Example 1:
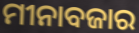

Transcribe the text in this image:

ମୀନାବଜାର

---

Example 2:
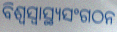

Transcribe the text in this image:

ବିଶ୍ଵସ୍ଵାସ୍ଥ୍ୟସଂଗଠନ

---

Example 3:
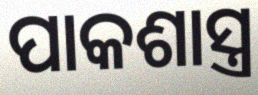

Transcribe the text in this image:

ପାକଶାସ୍ତ୍ର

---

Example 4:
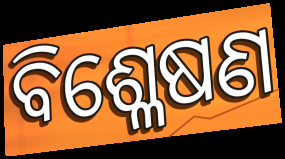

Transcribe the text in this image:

ବିଶ୍ଳେଷଣ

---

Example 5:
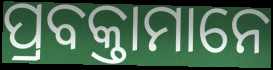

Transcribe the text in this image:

ପ୍ରବକ୍ତାମାନେ